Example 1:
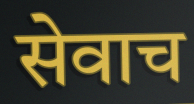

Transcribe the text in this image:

सेवाच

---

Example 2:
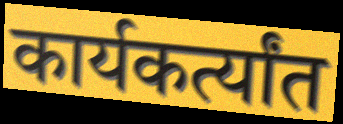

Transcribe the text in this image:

कार्यकर्त्यांत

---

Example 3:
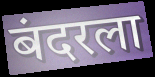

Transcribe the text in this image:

बंदरला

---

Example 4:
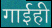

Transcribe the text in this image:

गाईही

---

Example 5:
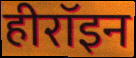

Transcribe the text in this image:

हीरॉइन